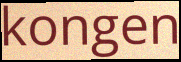
kongen